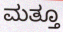
ಮತ್ತೂ